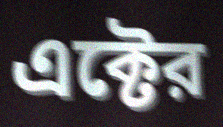
এক্টের